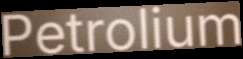
Petrolium